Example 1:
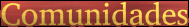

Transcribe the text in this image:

Comunidades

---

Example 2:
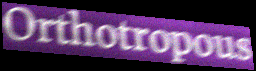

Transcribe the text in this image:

Orthotropous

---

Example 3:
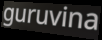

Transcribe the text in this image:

guruvina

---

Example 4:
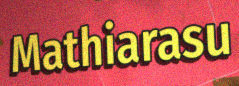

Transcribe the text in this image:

Mathiarasu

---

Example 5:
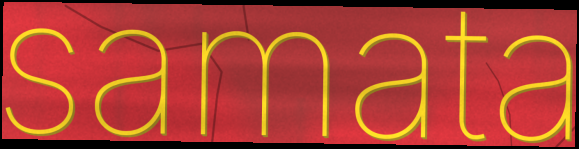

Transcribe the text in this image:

samata